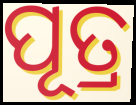
ପୂତ୍ର